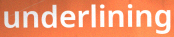
underlining